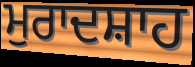
ਮੁਰਾਦਸ਼ਾਹ